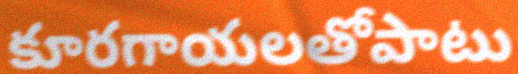
కూరగాయలతోపాటు